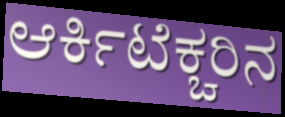
ಆರ್ಕಿಟೆಕ್ಚರಿನ